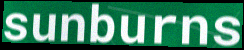
sunburns